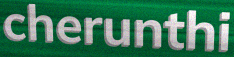
cherunthi